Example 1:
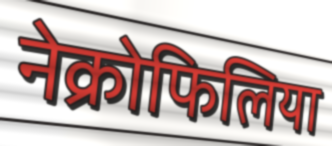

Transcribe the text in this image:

नेक्रोफिलिया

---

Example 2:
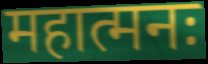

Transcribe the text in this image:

महात्मनः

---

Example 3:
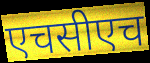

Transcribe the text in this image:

एचसीएच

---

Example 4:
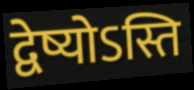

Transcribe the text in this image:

द्वेष्योऽस्ति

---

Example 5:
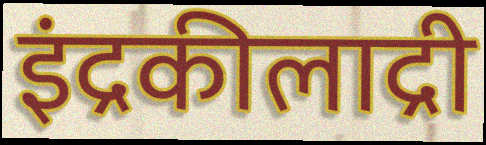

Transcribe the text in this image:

इंद्रकीलाद्री